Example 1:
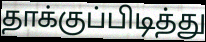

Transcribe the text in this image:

தாக்குப்பிடித்து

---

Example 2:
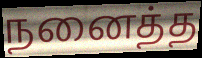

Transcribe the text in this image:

நனைத்த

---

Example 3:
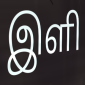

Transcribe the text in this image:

இளி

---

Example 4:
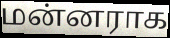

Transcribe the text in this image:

மன்னராக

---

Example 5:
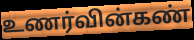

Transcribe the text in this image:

உணர்வின்கண்